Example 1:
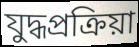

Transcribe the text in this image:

যুদ্ধপ্রক্রিয়া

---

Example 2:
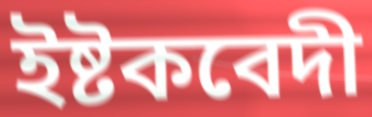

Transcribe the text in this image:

ইষ্টকবেদী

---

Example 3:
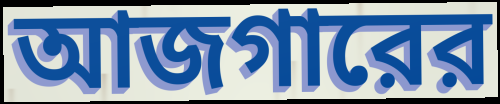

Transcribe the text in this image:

আজগারের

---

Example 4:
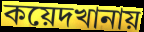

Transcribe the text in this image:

কয়েদখানায়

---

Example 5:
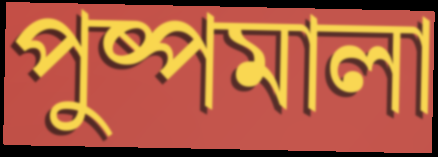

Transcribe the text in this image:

পুষ্পমালা